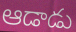
ఆడాడు